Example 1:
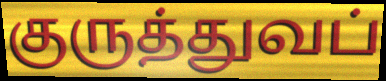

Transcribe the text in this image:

குருத்துவப்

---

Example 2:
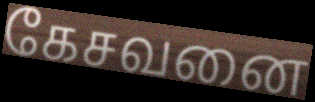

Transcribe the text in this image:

கேசவனை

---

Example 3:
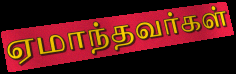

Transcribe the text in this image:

ஏமாந்தவர்கள்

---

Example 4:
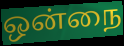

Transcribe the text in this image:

ஒன்நை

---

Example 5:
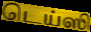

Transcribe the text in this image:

டெய்ஸி